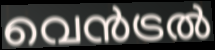
വെൻട്രൽ